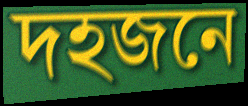
দহজনে